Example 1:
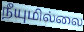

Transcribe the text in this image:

நீயுமில்லை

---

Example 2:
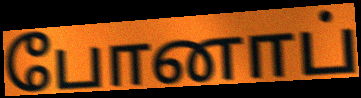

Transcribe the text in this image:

போனாப்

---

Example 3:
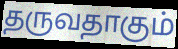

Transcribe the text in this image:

தருவதாகும்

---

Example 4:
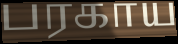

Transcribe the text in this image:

பரகாய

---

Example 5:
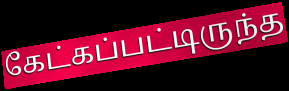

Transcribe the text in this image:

கேட்கப்பட்டிருந்த